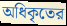
অধিকৃতের